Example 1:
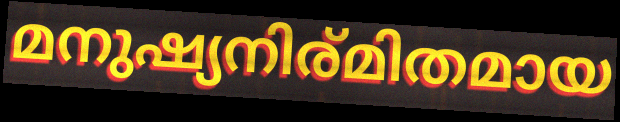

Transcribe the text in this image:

മനുഷ്യനിര്മിതമായ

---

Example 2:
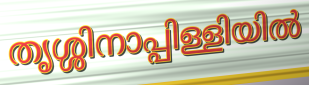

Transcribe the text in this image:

തൃശ്ശിനാപ്പിള്ളിയിൽ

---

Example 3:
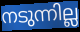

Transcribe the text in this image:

നടുന്നില്ല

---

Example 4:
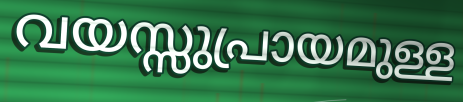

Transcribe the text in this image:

വയസ്സുപ്രായമുള്ള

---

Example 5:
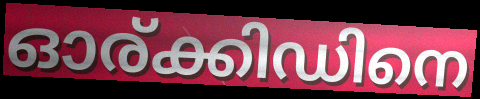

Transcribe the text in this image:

ഓര്ക്കിഡിനെ